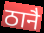
ठानै